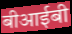
बीआईबी